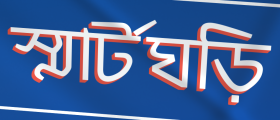
স্মার্টঘড়ি